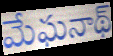
మేఘనాథ్